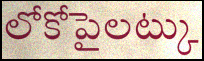
లోకోపైలట్కు